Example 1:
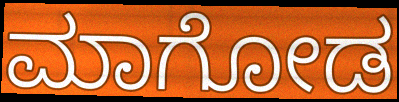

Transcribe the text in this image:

ಮಾಗೋಡ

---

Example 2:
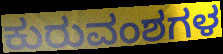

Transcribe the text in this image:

ಕುರುವಂಶಗಳ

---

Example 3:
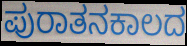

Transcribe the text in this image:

ಪುರಾತನಕಾಲದ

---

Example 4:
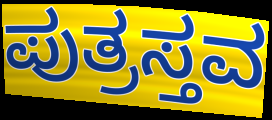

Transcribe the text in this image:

ಪುತ್ರಸ್ತವ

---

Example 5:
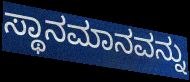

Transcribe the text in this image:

ಸ್ಥಾನಮಾನವನ್ನು